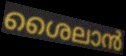
ശൈലാൻ